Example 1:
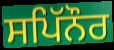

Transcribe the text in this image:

ਸਪਿੱਨੌਰ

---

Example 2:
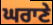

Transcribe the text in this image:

ਘਰਾਣੇ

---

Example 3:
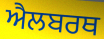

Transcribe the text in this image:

ਐਲਬਰਥ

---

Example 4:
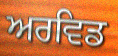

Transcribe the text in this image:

ਅਰਵਿਡ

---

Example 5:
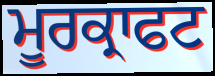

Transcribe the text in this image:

ਮੂਰਕ੍ਰਾਫਟ